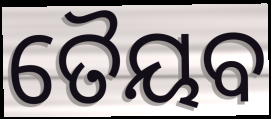
ତୈୟବ